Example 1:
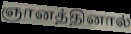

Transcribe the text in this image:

ஞானத்தினால்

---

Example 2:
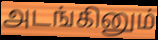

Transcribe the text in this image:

அடங்கினும்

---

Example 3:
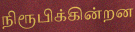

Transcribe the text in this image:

நிரூபிக்கின்றன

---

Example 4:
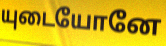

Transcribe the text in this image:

யுடையோனே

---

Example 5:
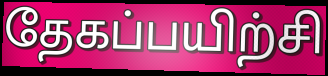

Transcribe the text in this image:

தேகப்பயிற்சி